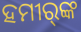
ହମୀର୍‍ଙ୍କ